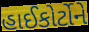
હાઈકોર્ટોને